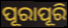
ପୂରାପୂରି